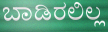
ಬಾಡಿರಲಿಲ್ಲ